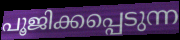
പൂജിക്കപ്പെടുന്ന